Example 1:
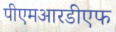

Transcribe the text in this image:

पीएमआरडीएफ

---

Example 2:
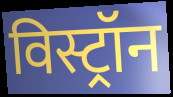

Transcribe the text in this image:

विस्ट्रॉन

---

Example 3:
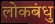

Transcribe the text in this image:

लोकबंधु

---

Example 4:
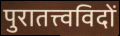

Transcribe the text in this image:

पुरातत्त्वविदों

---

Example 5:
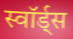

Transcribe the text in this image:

स्‍वॉर्ड्स